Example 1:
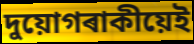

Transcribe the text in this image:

দুয়োগৰাকীয়েই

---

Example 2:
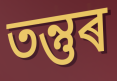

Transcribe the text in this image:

তন্তুৰ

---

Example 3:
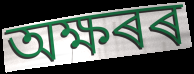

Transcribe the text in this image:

অক্ষৰৰ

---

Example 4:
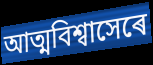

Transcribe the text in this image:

আত্মবিশ্বাসেৰে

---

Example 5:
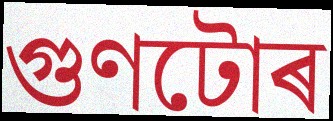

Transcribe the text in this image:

গুণটোৰ